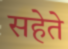
सहेते